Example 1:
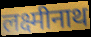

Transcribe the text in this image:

लक्ष्मीनाथ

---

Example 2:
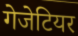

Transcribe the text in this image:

गेजेटियर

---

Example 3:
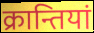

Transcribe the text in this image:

क्रान्तियां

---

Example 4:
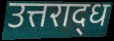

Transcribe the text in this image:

उत्तराद्ध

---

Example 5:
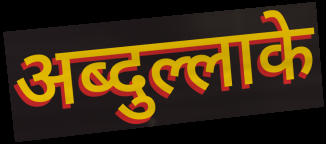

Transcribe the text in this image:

अब्दुल्लाके